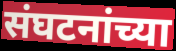
संघटनांच्या